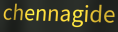
chennagide